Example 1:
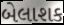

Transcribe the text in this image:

બેલાશક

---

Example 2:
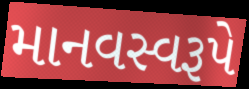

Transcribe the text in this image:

માનવસ્વરૂપે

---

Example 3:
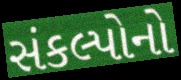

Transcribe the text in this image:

સંકલ્પોનો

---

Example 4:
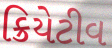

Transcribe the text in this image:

ક્રિયેટીવ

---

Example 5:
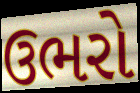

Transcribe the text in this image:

ઉભરો